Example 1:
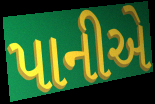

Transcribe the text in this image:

પાનીએ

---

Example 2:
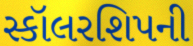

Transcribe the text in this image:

સ્કૉલરશિપની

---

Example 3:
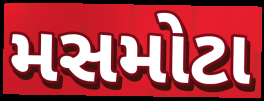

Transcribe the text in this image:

મસમોટા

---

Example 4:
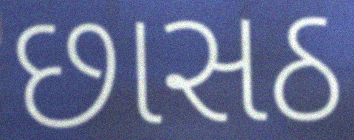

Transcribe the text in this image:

છાસઠ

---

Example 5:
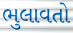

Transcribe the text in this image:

ભુલાવતો